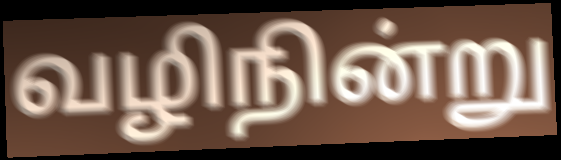
வழிநின்று